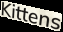
Kittens